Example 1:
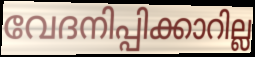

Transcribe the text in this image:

വേദനിപ്പിക്കാറില്ല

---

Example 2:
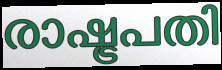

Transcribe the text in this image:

രാഷ്ട്രപതി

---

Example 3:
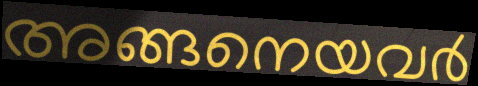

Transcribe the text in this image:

അങ്ങനെയവർ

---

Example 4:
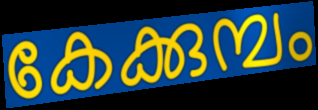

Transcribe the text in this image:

കേക്കുമ്പം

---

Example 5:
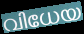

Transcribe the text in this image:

വിധേയ